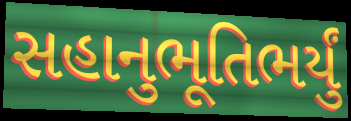
સહાનુભૂતિભર્યું